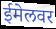
ईमेलवर